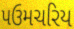
પઉમચરિય